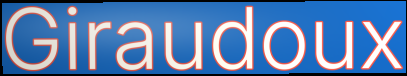
Giraudoux